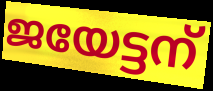
ജയേട്ടന്